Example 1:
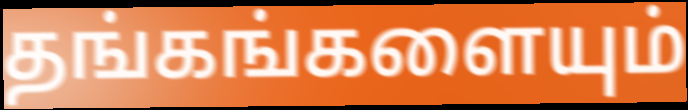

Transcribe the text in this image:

தங்கங்களையும்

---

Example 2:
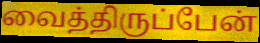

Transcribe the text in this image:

வைத்திருப்பேன்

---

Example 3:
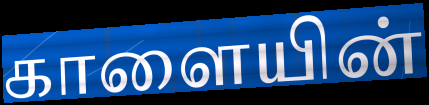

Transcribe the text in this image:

காளையின்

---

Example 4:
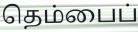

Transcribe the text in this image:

தெம்பைப்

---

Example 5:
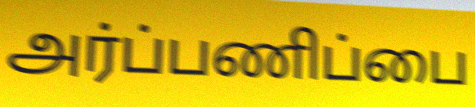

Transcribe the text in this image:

அர்ப்பணிப்பை